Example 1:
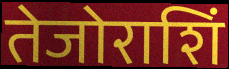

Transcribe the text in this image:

तेजोराशिं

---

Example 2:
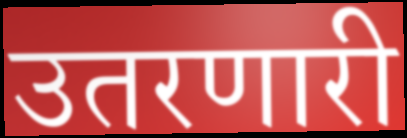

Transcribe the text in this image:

उतरणारी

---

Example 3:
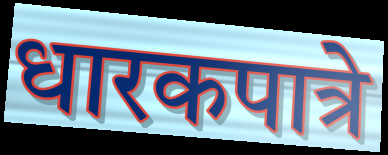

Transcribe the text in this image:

धारकपात्रे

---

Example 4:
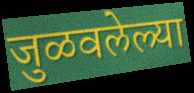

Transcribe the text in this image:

जुळवलेल्या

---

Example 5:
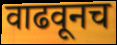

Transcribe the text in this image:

वाढवूनच